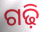
ଗଢ଼ି